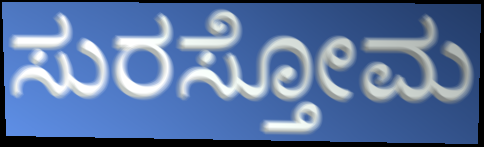
ಸುರಸ್ತೋಮ